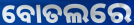
ବୋତଲରେ